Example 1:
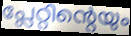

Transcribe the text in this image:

പ്ലേറ്റിന്റെയും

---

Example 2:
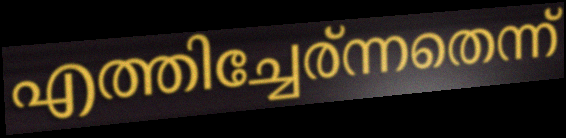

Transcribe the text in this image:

എത്തിച്ചേര്ന്നതെന്ന്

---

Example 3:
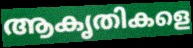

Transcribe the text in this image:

ആകൃതികളെ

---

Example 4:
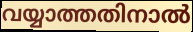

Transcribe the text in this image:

വയ്യാത്തതിനാൽ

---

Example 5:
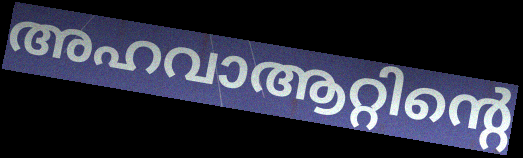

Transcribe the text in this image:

അഹവാആറ്റിന്റെ